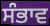
ਸੰਭਾਵ